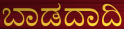
ಬಾಡದಾದಿ